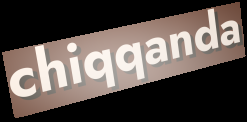
chiqqanda